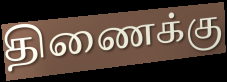
திணைக்கு